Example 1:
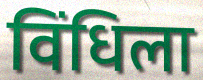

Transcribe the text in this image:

विंधिला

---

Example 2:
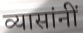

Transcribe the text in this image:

व्यासांनीं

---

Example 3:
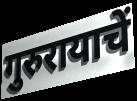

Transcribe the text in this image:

गुरुरायाचें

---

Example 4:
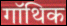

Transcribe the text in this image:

गॉथिक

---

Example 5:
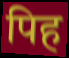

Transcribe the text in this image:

पिह